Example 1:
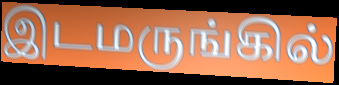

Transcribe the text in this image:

இடமருங்கில்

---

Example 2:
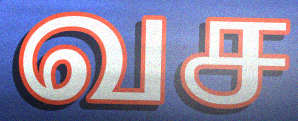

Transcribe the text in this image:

வச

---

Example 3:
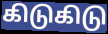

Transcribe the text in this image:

கிடுகிடு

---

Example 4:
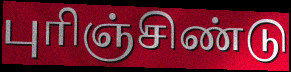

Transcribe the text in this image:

புரிஞ்சிண்டு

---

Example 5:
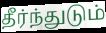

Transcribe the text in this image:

தீர்ந்துடும்